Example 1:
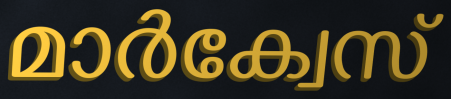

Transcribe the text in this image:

മാർക്വേസ്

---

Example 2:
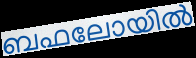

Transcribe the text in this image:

ബഫലോയിൽ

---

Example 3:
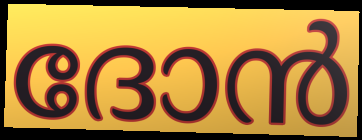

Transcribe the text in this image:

ദോൻ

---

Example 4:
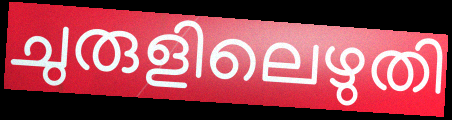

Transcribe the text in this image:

ചുരുളിലെഴുതി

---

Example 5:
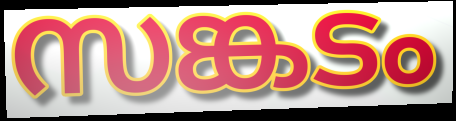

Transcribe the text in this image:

സങ്കടം